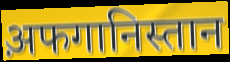
अ़फगानिस्तान